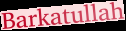
Barkatullah